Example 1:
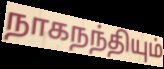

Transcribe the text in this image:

நாகநந்தியும்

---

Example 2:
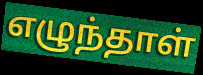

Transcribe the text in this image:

எழுந்தாள்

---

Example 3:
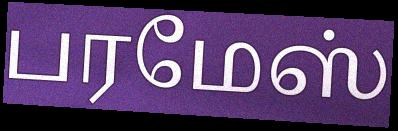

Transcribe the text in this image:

பரமேஸ்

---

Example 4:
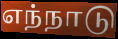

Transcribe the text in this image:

எந்நாடு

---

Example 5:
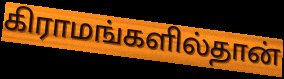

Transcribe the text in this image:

கிராமங்களில்தான்